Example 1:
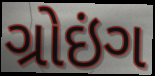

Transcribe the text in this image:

ગ્રોઇંગ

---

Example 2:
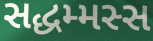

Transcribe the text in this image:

સદ્ધમ્મસ્સ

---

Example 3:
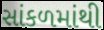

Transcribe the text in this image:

સાંકળમાંથી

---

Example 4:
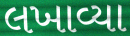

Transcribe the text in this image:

લખાવ્યા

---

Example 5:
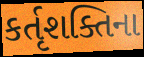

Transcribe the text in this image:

કર્તૃશક્તિના